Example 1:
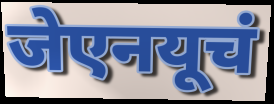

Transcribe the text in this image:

जेएनयूचं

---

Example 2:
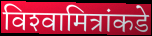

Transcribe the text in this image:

विश्वामित्रांकडे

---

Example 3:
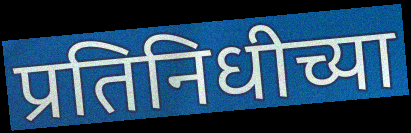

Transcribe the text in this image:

प्रतिनिधीच्या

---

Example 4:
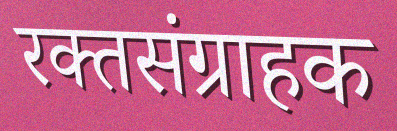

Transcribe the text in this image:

रक्तसंग्राहक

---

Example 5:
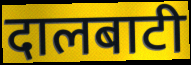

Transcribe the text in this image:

दालबाटी